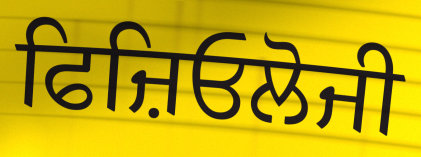
ਫਿਜ਼ਿਓਲੋਜੀ